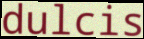
dulcis